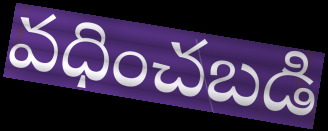
వధించబడి